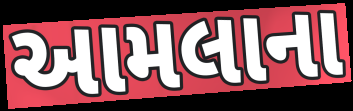
આમલાના